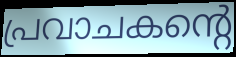
പ്രവാചകന്റെ